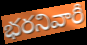
భరనివారీ